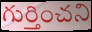
గుర్తించని